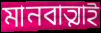
মানবাত্মাই